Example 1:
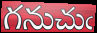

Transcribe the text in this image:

గనుచుఁ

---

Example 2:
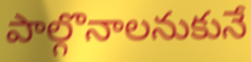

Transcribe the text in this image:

పాల్గొనాలనుకునే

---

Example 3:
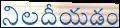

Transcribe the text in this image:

నిలదీయడం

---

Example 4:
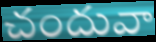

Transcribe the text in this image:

చందువా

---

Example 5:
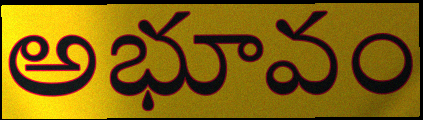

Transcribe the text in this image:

అభూవం